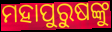
ମହାପୁରୁଷଙ୍କୁ